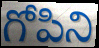
గోపిని